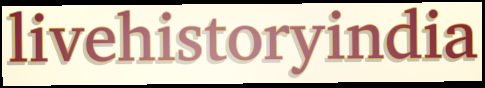
livehistoryindia